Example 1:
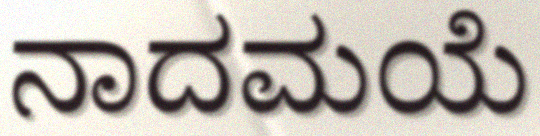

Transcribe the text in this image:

ನಾದಮಯೆ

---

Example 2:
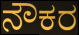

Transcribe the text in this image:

ನೌಕರ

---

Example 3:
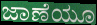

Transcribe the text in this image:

ಜಾಣೆಯೂ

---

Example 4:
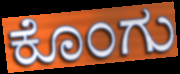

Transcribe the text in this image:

ಕೊಂಗು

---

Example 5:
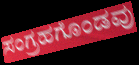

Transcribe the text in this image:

ಸಂಗ್ರಹಗೊಂಡವು